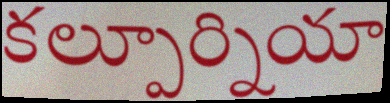
కల్పూర్నియా